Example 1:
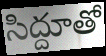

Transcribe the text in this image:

సిద్దూతో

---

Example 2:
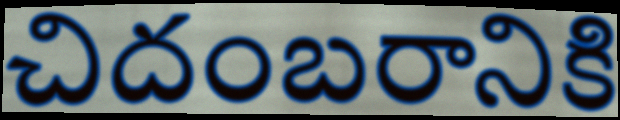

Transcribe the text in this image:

చిదంబరానికి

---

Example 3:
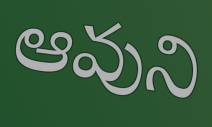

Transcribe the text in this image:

ఆవుని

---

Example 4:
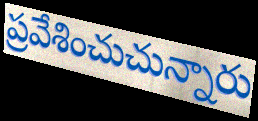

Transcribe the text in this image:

ప్రవేశించుచున్నారు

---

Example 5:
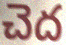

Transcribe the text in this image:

చెద